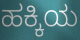
ಹಕ್ಕಿಯ